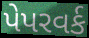
પેપરવર્ક